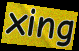
xing